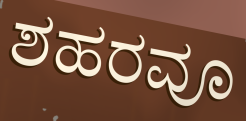
ಶಹರವೂ